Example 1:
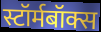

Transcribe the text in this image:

स्टॉर्मबॉक्स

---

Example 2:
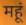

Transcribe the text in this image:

महूं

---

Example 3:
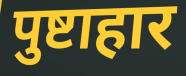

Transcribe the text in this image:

पुष्टाहार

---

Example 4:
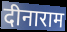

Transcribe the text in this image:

दीनाराम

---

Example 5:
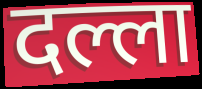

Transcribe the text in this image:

दल्ला